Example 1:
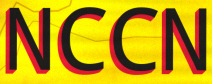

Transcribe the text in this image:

NCCN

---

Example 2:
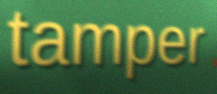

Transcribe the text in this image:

tamper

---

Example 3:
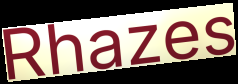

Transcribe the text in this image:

Rhazes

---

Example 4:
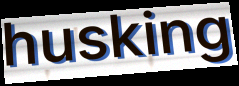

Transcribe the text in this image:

husking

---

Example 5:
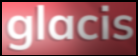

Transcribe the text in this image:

glacis